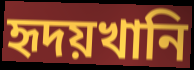
হৃদয়খানি